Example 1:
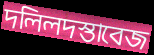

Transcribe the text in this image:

দলিলদস্তাবেজ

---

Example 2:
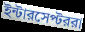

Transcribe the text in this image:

ইন্টারসেপ্টররা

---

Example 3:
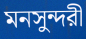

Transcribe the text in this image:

মনসুন্দরী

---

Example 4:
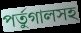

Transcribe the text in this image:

পর্তুগালসহ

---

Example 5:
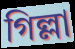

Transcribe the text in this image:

গিল্লা